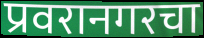
प्रवरानगरचा